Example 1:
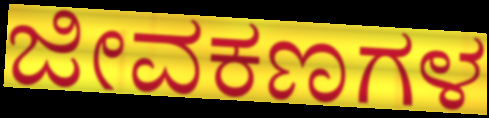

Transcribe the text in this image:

ಜೀವಕಣಗಳ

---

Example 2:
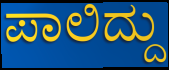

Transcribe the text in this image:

ಪಾಲಿದ್ದು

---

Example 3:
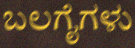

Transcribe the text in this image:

ಬಲಗೈಗಳು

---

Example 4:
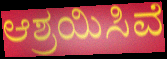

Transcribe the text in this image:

ಆಶ್ರಯಿಸಿವೆ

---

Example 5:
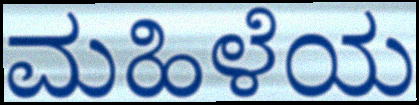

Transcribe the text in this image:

ಮಹಿಳೆಯ